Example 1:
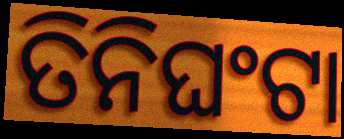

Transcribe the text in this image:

ତିନିଘଂଟା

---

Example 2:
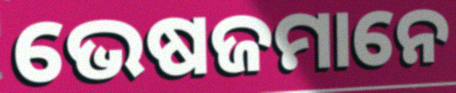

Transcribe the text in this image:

ଭେଷଜମାନେ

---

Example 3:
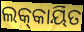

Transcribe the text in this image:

ଲକ୍‌କାୟିତ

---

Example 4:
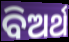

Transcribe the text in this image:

ବିଅର୍ଥ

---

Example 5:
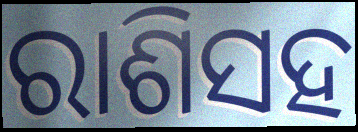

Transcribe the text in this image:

ରାଶିସହ